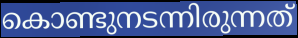
കൊണ്ടുനടന്നിരുന്നത്